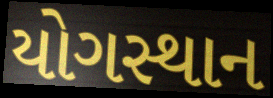
યોગસ્થાન